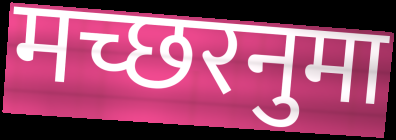
मच्छरनुमा